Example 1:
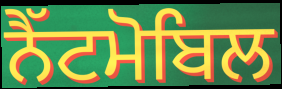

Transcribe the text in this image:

ਨੈੱਟਮੋਬਿਲ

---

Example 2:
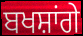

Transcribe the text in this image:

ਬਖਸ਼ਾਂਗੇ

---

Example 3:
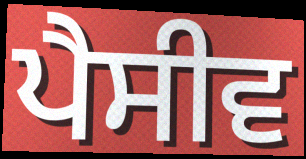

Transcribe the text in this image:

ਪੈਸੀਵ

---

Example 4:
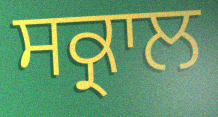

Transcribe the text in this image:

ਸਕ੍ਰਾਲ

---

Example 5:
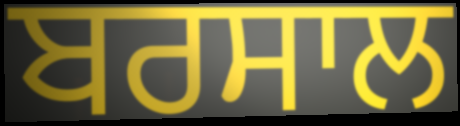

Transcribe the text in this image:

ਬਰਸਾਲ